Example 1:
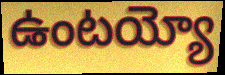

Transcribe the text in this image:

ఉంటయ్యో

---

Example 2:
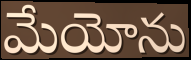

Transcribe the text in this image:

మేయోను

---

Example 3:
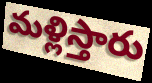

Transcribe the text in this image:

మళ్లిస్తారు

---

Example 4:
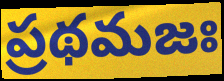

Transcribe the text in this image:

ప్రథమజః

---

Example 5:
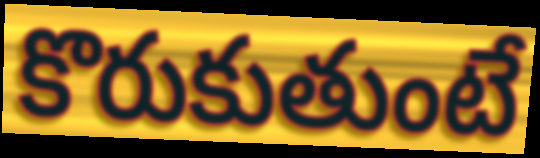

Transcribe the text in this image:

కొరుకుతుంటే